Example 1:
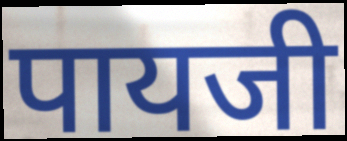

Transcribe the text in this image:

पायजी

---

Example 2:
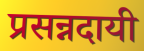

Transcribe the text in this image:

प्रसन्नदायी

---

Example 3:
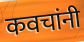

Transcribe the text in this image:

कवचांनी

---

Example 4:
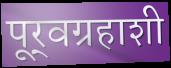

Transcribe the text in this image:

पूर्वग्रहाशी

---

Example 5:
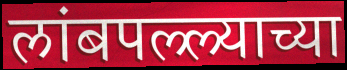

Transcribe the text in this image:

लांबपल्ल्याच्या